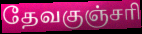
தேவகுஞ்சரி